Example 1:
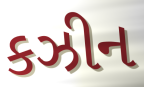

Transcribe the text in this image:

કઝીન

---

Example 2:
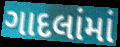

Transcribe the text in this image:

ગાદલાંમાં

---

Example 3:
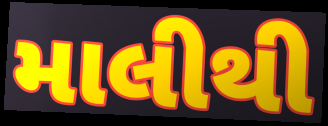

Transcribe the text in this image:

માલીથી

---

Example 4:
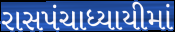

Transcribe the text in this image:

રાસપંચાધ્યાયીમાં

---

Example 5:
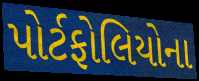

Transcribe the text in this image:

પોર્ટફોલિયોના